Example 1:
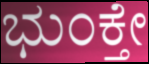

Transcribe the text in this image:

ಭುಂಕ್ತೇ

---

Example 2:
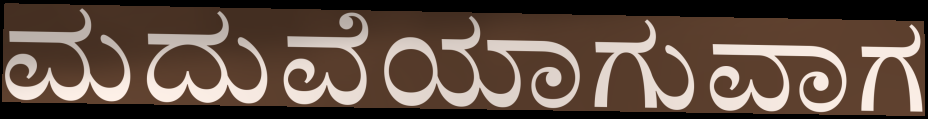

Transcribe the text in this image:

ಮದುವೆಯಾಗುವಾಗ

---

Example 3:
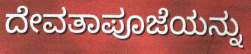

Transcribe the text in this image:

ದೇವತಾಪೂಜೆಯನ್ನು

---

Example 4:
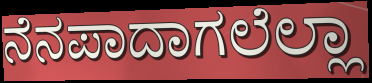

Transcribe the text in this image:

ನೆನಪಾದಾಗಲೆಲ್ಲಾ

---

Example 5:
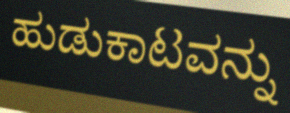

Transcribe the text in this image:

ಹುಡುಕಾಟವನ್ನು